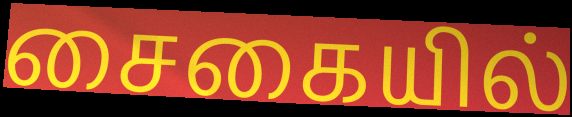
சைகையில்